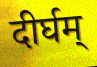
दीर्घम्